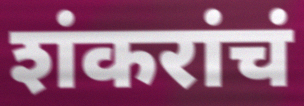
शंकरांचं